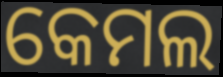
କେମଲ